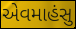
એવમાહંસુ